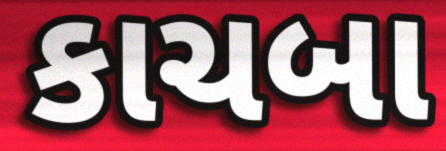
કાચબા